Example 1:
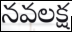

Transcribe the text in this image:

నవలక్ష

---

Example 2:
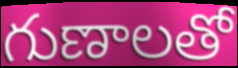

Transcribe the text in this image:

గుణాలతో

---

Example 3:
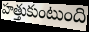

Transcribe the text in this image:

హత్తుకుంటుంది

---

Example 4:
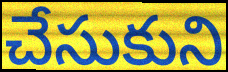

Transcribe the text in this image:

చేసుకుని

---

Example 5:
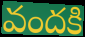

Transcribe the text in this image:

వందకి